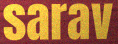
sarav